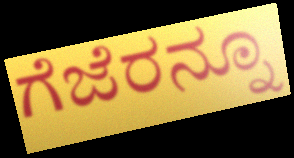
ಗೆಜೆರನ್ನೂ